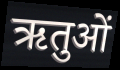
ऋतुओं